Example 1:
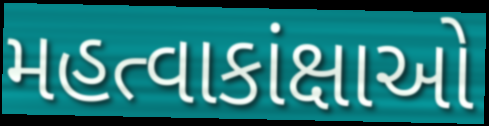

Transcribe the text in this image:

મહત્વાકાંક્ષાઓ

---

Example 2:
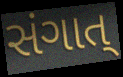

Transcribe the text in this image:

સંગાત્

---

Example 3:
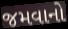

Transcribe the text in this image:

જમવાનો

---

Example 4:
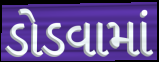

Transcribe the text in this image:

ડોડવામાં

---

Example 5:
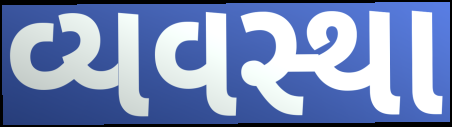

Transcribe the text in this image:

વ્યવસ્થા